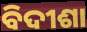
ବିଦୀଶା